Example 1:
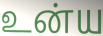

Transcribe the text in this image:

உன்ய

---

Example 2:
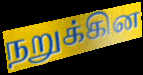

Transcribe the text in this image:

நறுக்கின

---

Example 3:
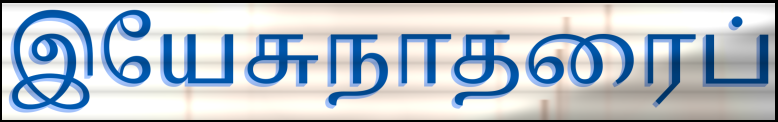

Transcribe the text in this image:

இயேசுநாதரைப்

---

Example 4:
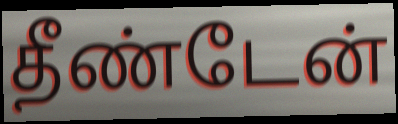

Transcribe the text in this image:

தீண்டேன்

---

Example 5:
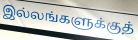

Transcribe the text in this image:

இல்லங்களுக்குத்